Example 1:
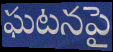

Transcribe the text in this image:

ఘటనపై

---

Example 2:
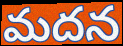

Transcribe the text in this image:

మదన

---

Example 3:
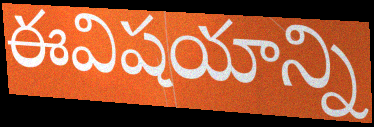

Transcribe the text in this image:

ఈవిషయాన్ని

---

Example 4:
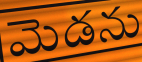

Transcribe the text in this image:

మెడను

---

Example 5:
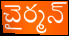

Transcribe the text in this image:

చైర్మన్